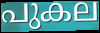
പുകല